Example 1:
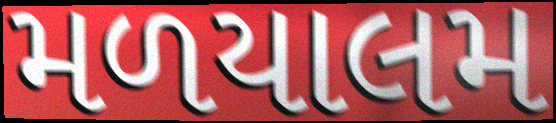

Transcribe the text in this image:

મળયાલમ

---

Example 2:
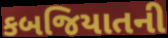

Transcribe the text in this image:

કબજિયાતની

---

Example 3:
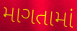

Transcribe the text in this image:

માગતામાં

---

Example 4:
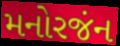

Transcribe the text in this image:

મનોરજંન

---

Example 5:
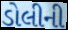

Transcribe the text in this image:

ડોલીની